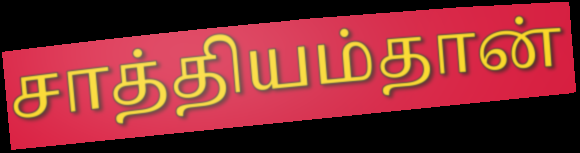
சாத்தியம்தான்